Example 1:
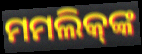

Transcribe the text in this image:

ମମଲିକ୍‌ଙ୍କ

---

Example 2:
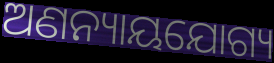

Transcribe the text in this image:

ଅଣନ୍ୟାୟଯୋଗ୍ୟ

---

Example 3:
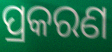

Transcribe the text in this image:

ପ୍ରକରଣ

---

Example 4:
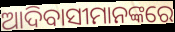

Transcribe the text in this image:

ଆଦିବାସୀମାନଙ୍କରେ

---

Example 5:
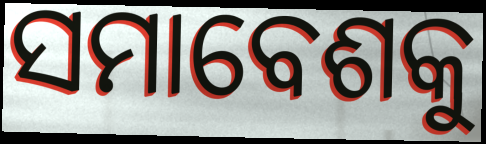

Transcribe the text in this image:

ସମାବେଶକୁ